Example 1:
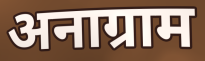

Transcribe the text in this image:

अनाग्राम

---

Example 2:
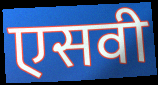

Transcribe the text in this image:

एसवी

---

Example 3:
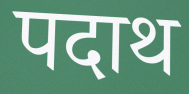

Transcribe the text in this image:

पदाथ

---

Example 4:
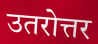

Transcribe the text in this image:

उतरोत्तर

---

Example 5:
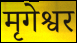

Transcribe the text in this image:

मृगेश्वर